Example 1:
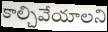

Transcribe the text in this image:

కాల్చివేయాలని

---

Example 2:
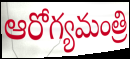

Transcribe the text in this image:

ఆరోగ్యమంత్రి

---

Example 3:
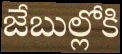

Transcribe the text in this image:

జేబుల్లోకి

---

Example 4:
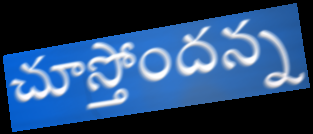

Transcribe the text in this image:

చూస్తోందన్న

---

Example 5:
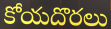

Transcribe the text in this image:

కోయదొరలు